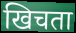
खिचता